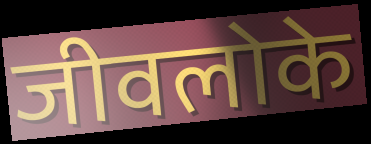
जीवलोके